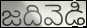
జదివెడి